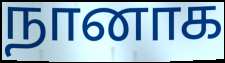
நானாக